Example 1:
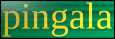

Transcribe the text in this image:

pingala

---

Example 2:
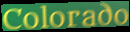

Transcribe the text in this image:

Colorado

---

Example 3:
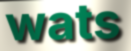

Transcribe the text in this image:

wats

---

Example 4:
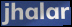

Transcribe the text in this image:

jhalar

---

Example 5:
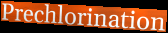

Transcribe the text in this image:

Prechlorination